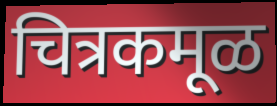
चित्रकमूळ